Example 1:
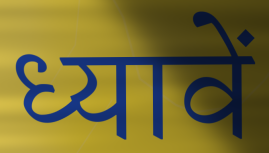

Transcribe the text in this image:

ध्यावें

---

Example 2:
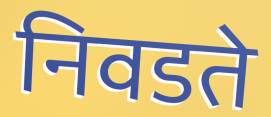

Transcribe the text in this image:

निवडते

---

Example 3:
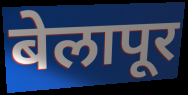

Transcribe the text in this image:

बेलापूर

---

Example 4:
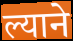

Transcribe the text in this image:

ल्याने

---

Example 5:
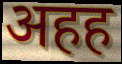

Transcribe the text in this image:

अहह